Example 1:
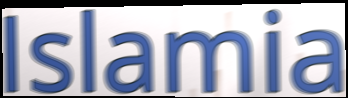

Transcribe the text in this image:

Islamia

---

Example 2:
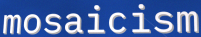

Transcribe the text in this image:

mosaicism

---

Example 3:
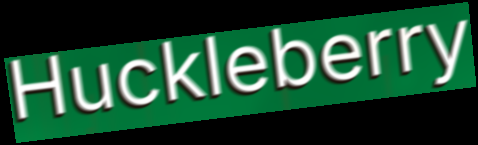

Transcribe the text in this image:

Huckleberry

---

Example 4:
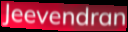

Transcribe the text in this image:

Jeevendran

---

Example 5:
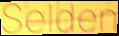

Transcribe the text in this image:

Selden